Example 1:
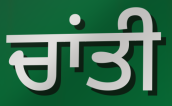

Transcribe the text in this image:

ਚਾਂਤੀ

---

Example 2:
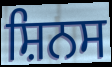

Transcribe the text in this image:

ਸ਼ਿਨਸ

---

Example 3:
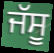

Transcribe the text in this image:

ਜੱਸੂ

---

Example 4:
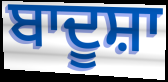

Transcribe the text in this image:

ਬਾਦੂਸ਼ਾ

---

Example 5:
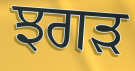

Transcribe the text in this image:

ਝਗੜ